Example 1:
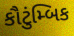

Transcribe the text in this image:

કૌટુંમ્બિક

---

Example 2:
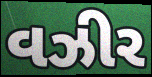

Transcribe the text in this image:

વઝીર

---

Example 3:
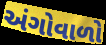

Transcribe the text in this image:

અંગોવાળો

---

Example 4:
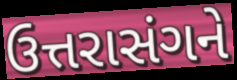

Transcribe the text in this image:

ઉત્તરાસંગને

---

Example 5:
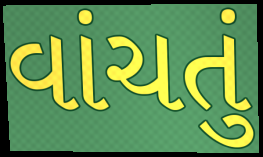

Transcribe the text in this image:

વાંચતું